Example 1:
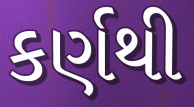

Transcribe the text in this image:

કર્ણથી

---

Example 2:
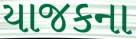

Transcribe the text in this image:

યાજકના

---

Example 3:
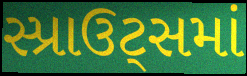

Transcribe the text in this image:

સ્પ્રાઉટ્સમાં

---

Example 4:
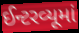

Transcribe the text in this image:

ઈન્ટરવ્યૂમાં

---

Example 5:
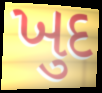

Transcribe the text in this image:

ખુદ